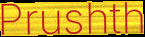
Prushth